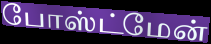
போஸ்ட்மேன்